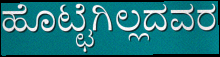
ಹೊಟ್ಟೆಗಿಲ್ಲದವರ